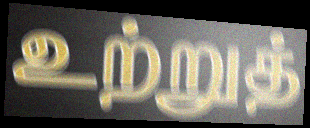
உற்றுத்